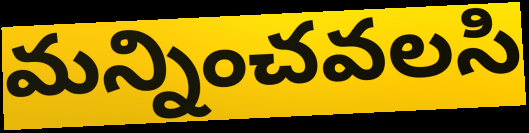
మన్నించవలసి